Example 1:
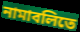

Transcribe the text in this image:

নামাবলিতে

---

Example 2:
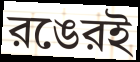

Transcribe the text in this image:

রঙেরই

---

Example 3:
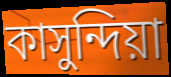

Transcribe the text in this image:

কাসুন্দিয়া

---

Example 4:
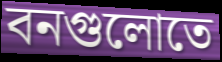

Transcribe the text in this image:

বনগুলোতে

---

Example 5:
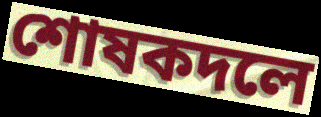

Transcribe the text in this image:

শোষকদলে